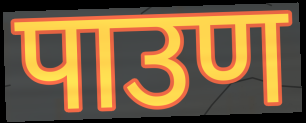
पाउण